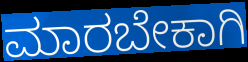
ಮಾರಬೇಕಾಗಿ